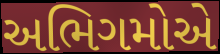
અભિગમોએ